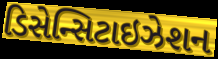
ડિસેન્સિટાઇઝેશન